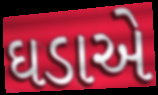
ઘડાએ